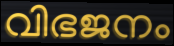
വിഭജനം